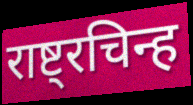
राष्ट्रचिन्ह